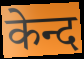
केन्द